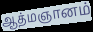
ஆத்மஞானம்